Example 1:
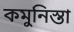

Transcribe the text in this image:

কমুনিস্তা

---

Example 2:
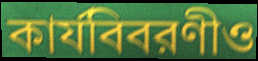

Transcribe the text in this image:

কার্যবিবরণীও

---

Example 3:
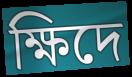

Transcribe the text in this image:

ক্ষিদে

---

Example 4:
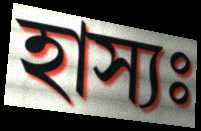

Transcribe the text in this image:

হাস্যঃ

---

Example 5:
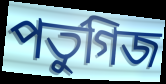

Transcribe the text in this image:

পর্তুগিজ